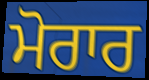
ਮੋਰਾਰ